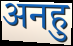
अनहु